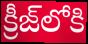
క్రీజ్‌లోకి